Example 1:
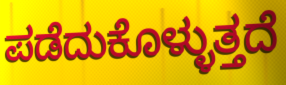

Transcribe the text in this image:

ಪಡೆದುಕೊಳ್ಳುತ್ತದೆ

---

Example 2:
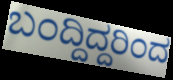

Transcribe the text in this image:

ಬಂದ್ದಿದ್ದರಿಂದ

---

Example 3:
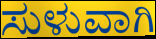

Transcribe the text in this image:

ಸುಳುವಾಗಿ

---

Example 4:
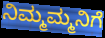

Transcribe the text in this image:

ನಿಮ್ಮಮ್ಮನಿಗೆ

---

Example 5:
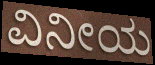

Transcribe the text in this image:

ವಿನೀಯ